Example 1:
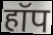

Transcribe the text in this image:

हॉप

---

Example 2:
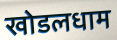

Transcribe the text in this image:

खोडलधाम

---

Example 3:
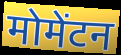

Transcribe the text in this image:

मोमेंटन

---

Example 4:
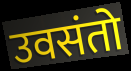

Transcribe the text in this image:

उवसंतो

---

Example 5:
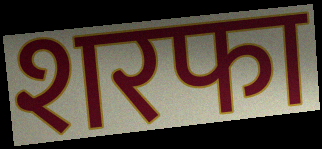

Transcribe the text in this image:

शरफा